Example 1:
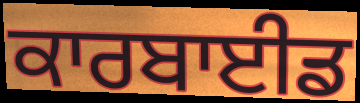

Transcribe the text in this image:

ਕਾਰਬਾਈਡ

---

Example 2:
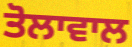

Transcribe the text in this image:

ਤੋਲਾਵਾਲ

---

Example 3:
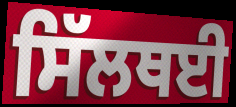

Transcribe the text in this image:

ਸਿੱਲਥਈ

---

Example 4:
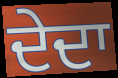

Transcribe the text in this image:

ਦੇਦਾ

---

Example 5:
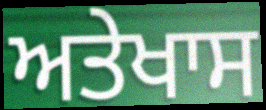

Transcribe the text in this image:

ਅਤੇਖਾਸ